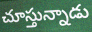
చూస్తున్నాడు